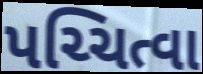
પચ્ચિત્વા